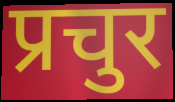
प्रचुर